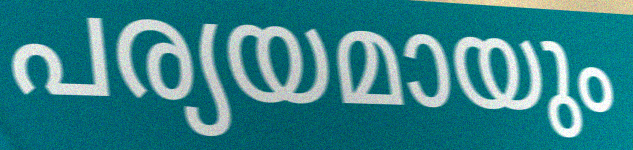
പര്യയമായും